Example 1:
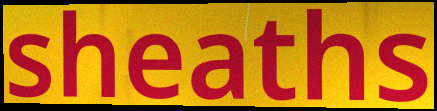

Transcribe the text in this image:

sheaths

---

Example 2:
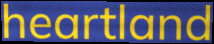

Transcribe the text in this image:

heartland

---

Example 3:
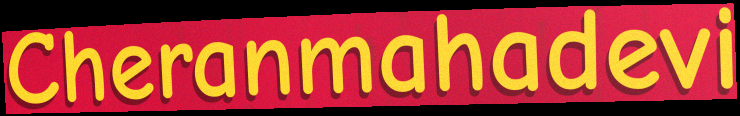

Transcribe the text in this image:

Cheranmahadevi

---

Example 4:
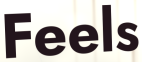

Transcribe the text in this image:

Feels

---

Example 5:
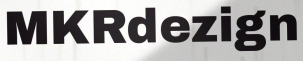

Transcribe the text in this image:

MKRdezign